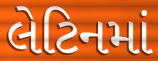
લેટિનમાં